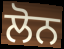
ਲੋਨ